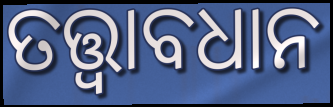
ତତ୍ତ୍ବାବଧାନ